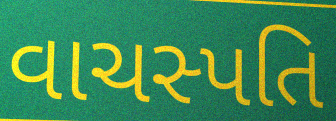
વાચસ્પતિ